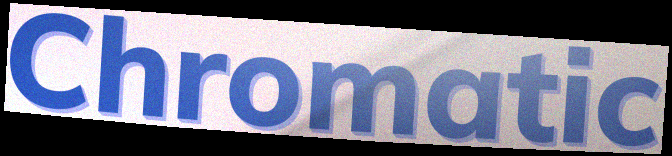
Chromatic